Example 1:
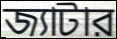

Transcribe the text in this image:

জ্যাটার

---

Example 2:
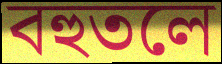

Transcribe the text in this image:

বহুতলে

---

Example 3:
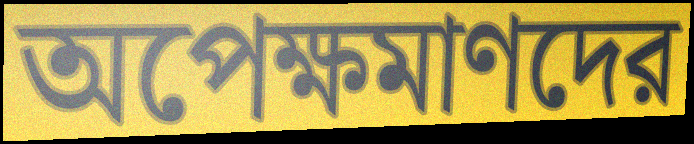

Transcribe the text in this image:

অপেক্ষমাণদের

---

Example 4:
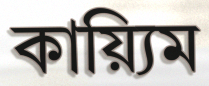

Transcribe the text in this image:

কায়্যিম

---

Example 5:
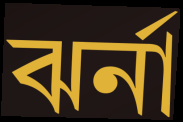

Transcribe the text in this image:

ঝর্না